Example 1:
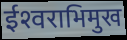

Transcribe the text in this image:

ईश्वराभिमुख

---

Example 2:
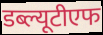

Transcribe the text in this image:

डब्ल्यूटीएफ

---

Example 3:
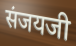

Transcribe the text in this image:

संजयजी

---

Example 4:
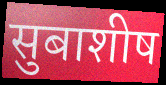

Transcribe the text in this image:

सुबाशीष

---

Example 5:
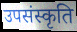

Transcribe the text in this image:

उपसंस्कृति